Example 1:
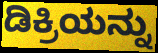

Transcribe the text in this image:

ಡಿಕ್ರಿಯನ್ನು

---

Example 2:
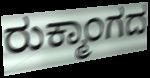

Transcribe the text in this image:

ರುಕ್ಮಾಂಗದ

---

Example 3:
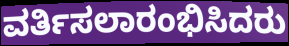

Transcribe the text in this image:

ವರ್ತಿಸಲಾರಂಭಿಸಿದರು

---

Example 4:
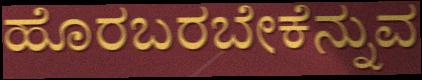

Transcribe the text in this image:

ಹೊರಬರಬೇಕೆನ್ನುವ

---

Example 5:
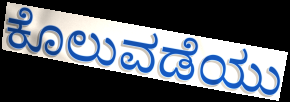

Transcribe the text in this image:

ಕೊಲುವಡೆಯು